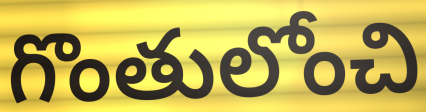
గొంతులోంచి